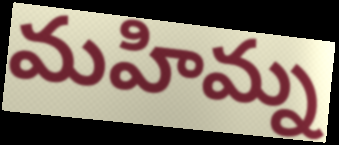
మహిమ్న